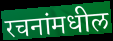
रचनांमधील